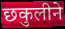
छकुलीने